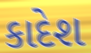
કાદેશ